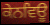
ਕੇਨਵਿਊ